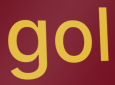
gol